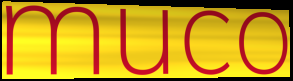
muco